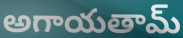
అగాయతామ్